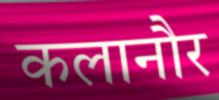
कलानौर